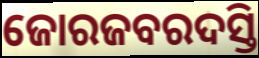
ଜୋରଜବରଦସ୍ତି